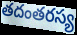
తదంతరస్య